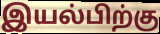
இயல்பிற்கு